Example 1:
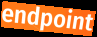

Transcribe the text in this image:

endpoint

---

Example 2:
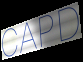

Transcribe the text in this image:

CAPD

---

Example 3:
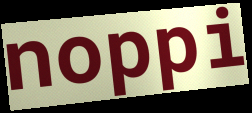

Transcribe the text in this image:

noppi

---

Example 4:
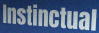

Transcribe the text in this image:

Instinctual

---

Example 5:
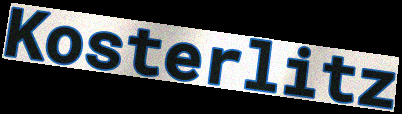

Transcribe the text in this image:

Kosterlitz